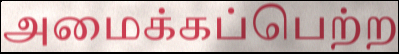
அமைக்கப்பெற்ற